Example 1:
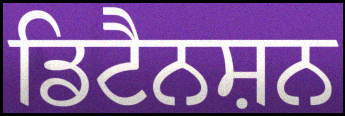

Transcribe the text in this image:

ਡਿਟੈਨਸ਼ਨ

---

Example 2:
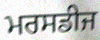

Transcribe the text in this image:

ਮਰਸਡੀਜ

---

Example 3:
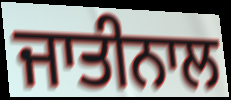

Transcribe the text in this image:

ਜਾਤੀਨਾਲ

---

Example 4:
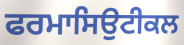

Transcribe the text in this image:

ਫਰਮਾਸਿਉਟੀਕਲ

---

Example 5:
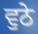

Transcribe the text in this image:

ਵੁਠੇ